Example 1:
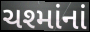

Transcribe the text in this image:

ચશ્માંનાં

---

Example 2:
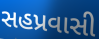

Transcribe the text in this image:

સહપ્રવાસી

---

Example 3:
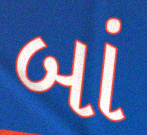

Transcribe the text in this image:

બાં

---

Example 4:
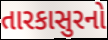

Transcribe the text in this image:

તારકાસુરનો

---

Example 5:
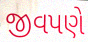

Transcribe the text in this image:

જીવપણે